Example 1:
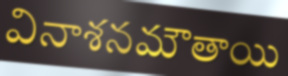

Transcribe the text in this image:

వినాశనమౌతాయి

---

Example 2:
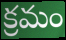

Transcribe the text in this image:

క్రమం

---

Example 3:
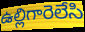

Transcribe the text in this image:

ఉల్లిగారెలేసి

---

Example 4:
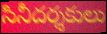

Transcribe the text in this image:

సినీదర్శకులు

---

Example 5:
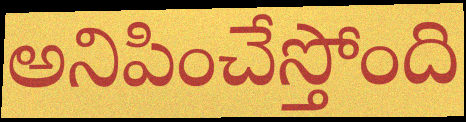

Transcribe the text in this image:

అనిపించేస్తోంది